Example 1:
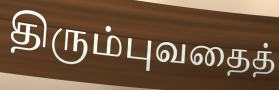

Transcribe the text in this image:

திரும்புவதைத்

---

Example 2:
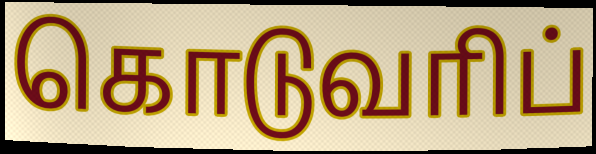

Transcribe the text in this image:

கொடுவரிப்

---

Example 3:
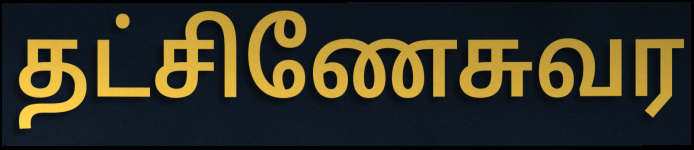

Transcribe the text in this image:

தட்சிணேசுவர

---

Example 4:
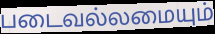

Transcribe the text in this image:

படைவல்லமையும்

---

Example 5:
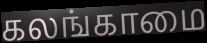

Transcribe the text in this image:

கலங்காமை